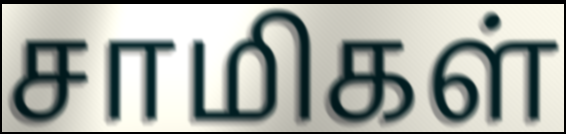
சாமிகள்